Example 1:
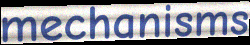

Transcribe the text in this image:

mechanisms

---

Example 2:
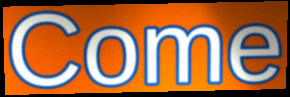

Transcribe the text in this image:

Come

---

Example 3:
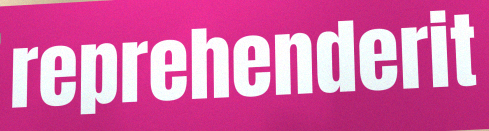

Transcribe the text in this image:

reprehenderit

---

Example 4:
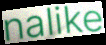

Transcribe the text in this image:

nalike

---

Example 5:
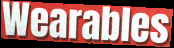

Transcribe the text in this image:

Wearables